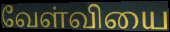
வேள்வியை